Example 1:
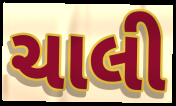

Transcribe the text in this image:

ચાલી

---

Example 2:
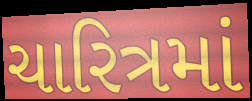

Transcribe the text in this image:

ચારિત્રમાં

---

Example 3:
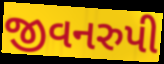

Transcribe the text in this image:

જીવનરુપી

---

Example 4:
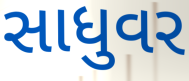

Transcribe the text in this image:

સાધુવર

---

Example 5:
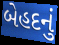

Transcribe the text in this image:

બેહદનું